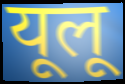
यूलू